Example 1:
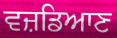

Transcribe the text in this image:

ਵਜ਼ਡਿਆਣ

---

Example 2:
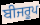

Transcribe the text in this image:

ਬੀਜਰੂਪ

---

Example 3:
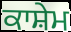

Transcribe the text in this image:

ਕਾਸ਼ੇਮ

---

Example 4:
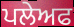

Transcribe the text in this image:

ਪਲੇਅਫ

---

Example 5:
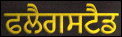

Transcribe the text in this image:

ਫਲੈਗਸਟੈਡ